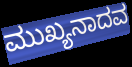
ಮುಖ್ಯನಾದವ